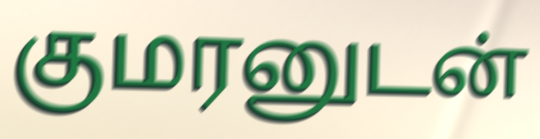
குமரனுடன்